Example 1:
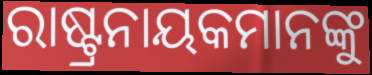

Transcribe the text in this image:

ରାଷ୍ଟ୍ରନାୟକମାନଙ୍କୁ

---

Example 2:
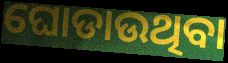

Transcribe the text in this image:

ଘୋଡାଉଥିବା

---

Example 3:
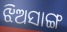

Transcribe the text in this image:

ଝିଅସାଙ୍ଗ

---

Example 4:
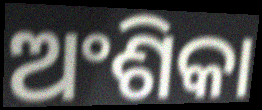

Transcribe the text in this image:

ଅଂଶିକା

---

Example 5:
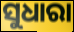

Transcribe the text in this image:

ସୁଧାରା